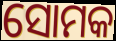
ସୋମକ